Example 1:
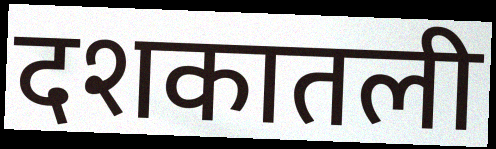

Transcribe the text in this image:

दशकातली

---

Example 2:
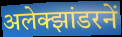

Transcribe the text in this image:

अलेक्झांडरनें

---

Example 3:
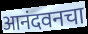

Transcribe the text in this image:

आनंदवनचा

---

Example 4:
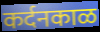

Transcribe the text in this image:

कर्दनकाळ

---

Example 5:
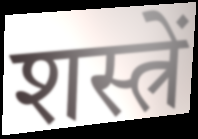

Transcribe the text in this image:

शस्त्रें